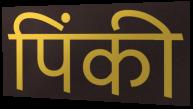
पिंकी